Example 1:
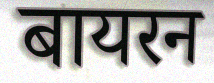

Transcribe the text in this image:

बायरन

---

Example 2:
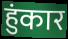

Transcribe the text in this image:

हुंकार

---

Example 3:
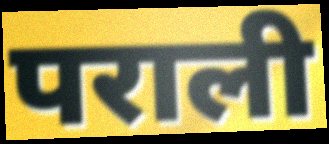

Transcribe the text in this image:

पराली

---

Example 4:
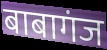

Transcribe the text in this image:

बाबागंज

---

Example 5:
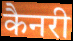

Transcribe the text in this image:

कैनरी